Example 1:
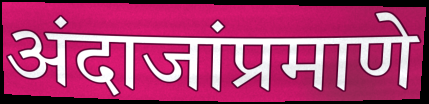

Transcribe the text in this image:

अंदाजांप्रमाणे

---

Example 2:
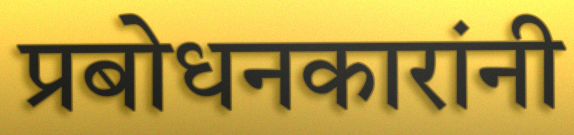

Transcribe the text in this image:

प्रबोधनकारांनी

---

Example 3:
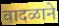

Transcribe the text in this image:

वादळाने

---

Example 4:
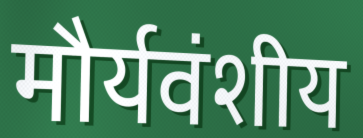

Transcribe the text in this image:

मौर्यवंशीय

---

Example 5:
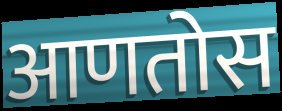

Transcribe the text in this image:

आणतोस